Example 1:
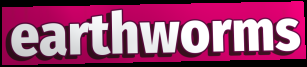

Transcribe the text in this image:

earthworms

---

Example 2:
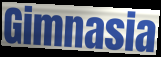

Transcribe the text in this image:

Gimnasia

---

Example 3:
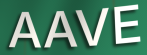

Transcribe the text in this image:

AAVE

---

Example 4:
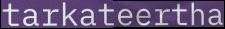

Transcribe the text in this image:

tarkateertha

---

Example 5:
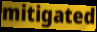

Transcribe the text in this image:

mitigated